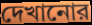
দেখানোর